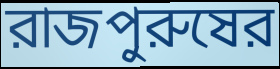
রাজপুরুষের